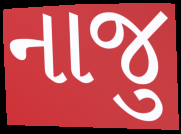
નાજુ